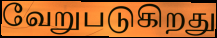
வேறுபடுகிறது